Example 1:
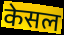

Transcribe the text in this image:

केसल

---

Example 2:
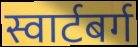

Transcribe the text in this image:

स्वार्टबर्ग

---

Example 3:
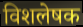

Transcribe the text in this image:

विशलेषक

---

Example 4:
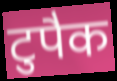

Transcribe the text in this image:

टुपैक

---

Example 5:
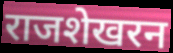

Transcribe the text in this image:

राजशेखरन